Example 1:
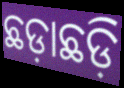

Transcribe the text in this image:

ଛଡ଼ାଛଡ଼ି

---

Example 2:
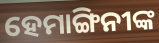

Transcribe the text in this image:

ହେମାଙ୍ଗିନୀଙ୍କ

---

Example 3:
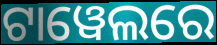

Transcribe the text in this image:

ଟାୱେଲରେ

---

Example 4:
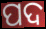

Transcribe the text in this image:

ପଦ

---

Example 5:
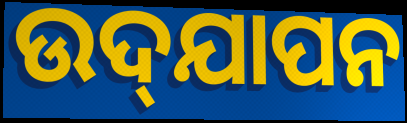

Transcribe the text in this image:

ଉଦ୍‌ଯାପନ